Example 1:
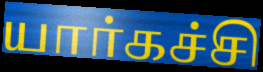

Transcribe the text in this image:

யார்கச்சி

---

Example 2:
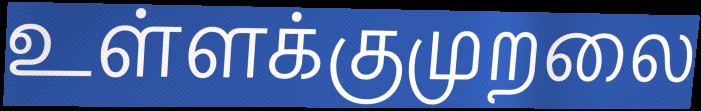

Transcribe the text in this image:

உள்ளக்குமுறலை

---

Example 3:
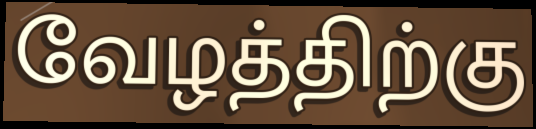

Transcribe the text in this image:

வேழத்திற்கு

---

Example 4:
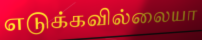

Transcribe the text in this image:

எடுக்கவில்லையா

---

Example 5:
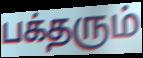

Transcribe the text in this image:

பக்தரும்